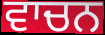
ਵਾਚਨ